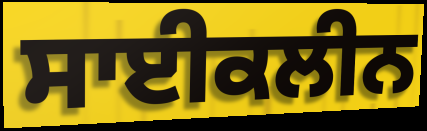
ਸਾਈਕਲੀਨ